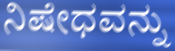
ನಿಷೇಧವನ್ನು